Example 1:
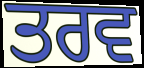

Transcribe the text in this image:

ਤਰਵ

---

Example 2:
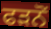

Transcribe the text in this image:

ਫੜਨੋਂ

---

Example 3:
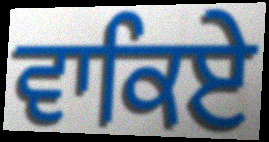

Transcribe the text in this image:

ਵਾਕਿਏ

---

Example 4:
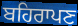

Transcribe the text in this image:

ਬਹਿਰਾਪਣ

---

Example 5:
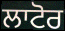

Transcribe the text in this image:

ਲਾਟੋਰ